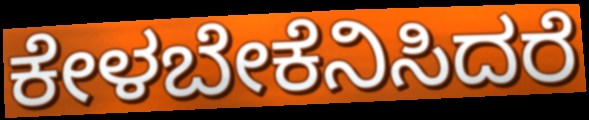
ಕೇಳಬೇಕೆನಿಸಿದರೆ